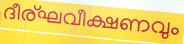
ദീര്ഘവീക്ഷണവും